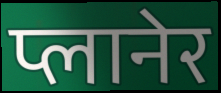
प्लानेर